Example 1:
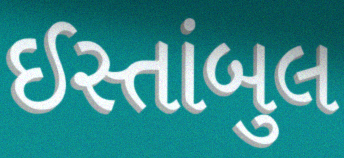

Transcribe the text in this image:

ઈસ્તાંબુલ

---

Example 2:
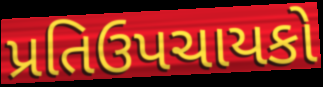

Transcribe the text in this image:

પ્રતિઉપચાયકો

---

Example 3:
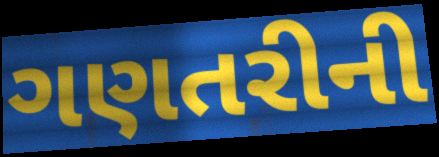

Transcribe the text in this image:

ગણતરીની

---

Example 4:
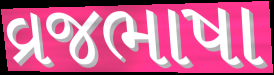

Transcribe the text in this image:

વ્રજભાષા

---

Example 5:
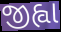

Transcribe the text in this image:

જીહ્વા